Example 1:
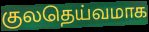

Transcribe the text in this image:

குலதெய்வமாக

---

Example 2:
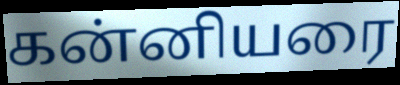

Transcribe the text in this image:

கன்னியரை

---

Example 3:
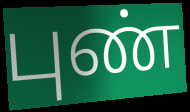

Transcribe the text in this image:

புண்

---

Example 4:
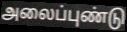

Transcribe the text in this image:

அலைப்புண்டு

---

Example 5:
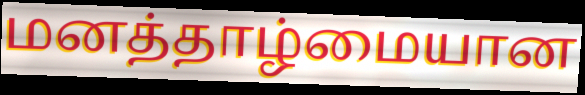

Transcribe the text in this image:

மனத்தாழ்மையான